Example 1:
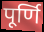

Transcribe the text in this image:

पूर्णि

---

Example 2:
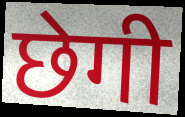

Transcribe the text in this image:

छेगी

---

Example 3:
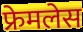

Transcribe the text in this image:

फ्रेमलेस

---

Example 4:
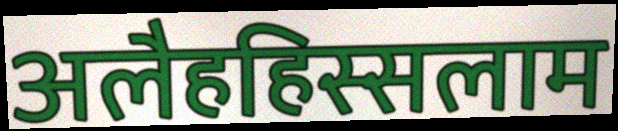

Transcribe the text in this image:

अलैहहिस्सलाम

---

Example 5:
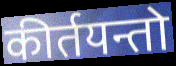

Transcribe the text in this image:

कीर्तयन्तो